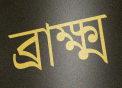
ব্রাক্ষ্ম